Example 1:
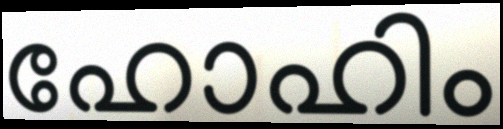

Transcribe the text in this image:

ഹോഹിം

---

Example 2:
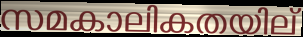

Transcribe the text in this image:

സമകാലികതയില്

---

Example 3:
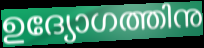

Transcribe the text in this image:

ഉദ്യോഗത്തിനു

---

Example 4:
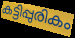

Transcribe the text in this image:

കട്ടിപ്പുരികം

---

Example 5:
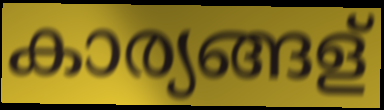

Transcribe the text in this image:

കാര്യങ്ങള്